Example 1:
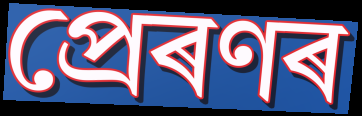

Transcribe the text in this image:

প্ৰেৰণৰ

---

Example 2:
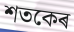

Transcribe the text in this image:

শতকেৰ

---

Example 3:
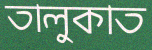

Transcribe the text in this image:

তালুকাত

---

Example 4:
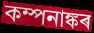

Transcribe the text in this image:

কম্পনাঙ্কৰ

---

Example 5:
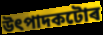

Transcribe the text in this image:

উৎপাদকটোৰ